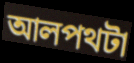
আলপথটা